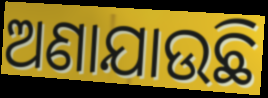
ଅଣାଯାଉଛି